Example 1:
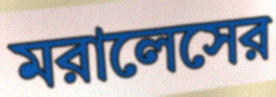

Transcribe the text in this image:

মরালেসের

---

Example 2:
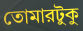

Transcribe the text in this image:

তোমারটুকু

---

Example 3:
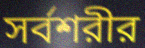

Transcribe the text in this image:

সর্বশরীর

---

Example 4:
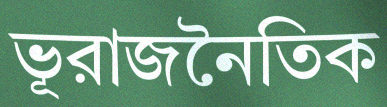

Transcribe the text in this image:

ভূরাজনৈতিক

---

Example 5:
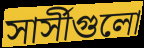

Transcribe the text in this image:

সার্সীগুলো